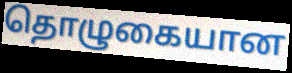
தொழுகையான